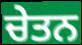
ਚੇਤਨ